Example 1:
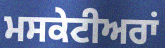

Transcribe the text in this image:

ਮਸਕੇਟੀਅਰਾਂ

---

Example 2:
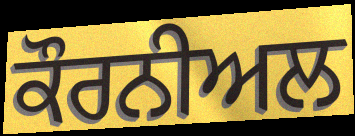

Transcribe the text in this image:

ਕੌਰਨੀਅਲ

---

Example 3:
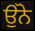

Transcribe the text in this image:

ਉੱਨੇ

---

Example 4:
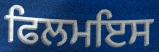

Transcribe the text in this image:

ਫਿਲਮਇਸ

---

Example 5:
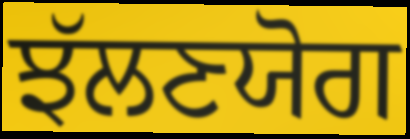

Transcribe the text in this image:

ਝੱਲਣਯੋਗ